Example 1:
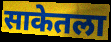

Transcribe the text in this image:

साकेतला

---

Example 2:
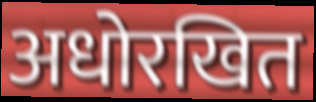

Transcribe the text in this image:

अधोरखित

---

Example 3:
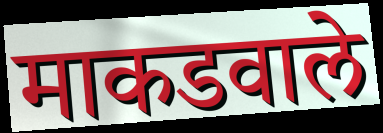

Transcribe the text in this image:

माकडवाले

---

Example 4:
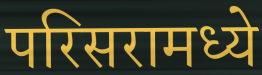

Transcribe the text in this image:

परिसरामध्ये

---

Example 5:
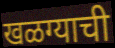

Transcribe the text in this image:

खळग्याची